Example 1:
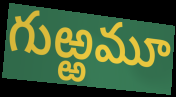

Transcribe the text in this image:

గుఱ్ఱమూ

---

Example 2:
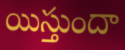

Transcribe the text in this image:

యిస్తుందా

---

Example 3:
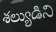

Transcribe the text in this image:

శల్యుడిని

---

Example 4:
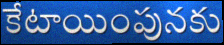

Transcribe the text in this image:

కేటాయింపునకు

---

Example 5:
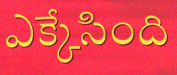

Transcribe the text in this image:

ఎక్కేసింది